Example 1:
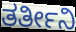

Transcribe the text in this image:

ತರ್ತೀನಿ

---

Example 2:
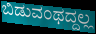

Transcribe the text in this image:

ಬಿಡುವಂಥದ್ದಲ್ಲ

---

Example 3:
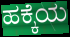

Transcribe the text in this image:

ಹಕ್ಕೆಯ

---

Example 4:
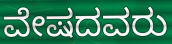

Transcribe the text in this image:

ವೇಷದವರು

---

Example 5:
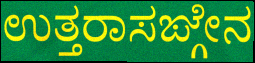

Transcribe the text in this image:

ಉತ್ತರಾಸಙ್ಗೇನ